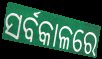
ସର୍ବକାଳରେ